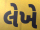
લેખે